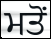
ਮਤੋਂ